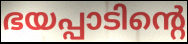
ഭയപ്പാടിന്റെ